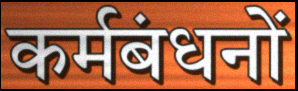
कर्मबंधनों